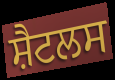
ਸ਼ੈਟਲਸ